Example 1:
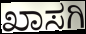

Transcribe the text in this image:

ಖಾಸಗಿ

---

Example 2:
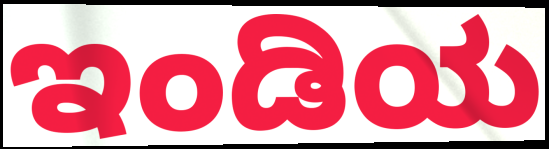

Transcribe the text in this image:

ಇಂಡಿಯ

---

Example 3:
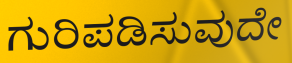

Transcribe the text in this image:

ಗುರಿಪಡಿಸುವುದೇ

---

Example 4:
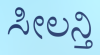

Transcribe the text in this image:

ಸೀಲನ್ತಿ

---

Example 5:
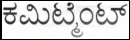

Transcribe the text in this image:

ಕಮಿಟ್ಮೆಂಟ್